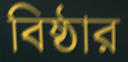
বিষ্ঠার